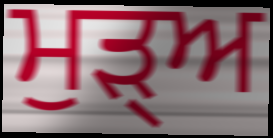
ਮੁਡ਼੍ਅ